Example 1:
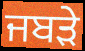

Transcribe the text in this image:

ਜਬੜੇ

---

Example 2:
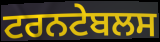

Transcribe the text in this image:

ਟਰਨਟੇਬਲਸ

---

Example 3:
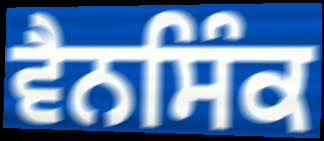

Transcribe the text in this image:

ਵੈਨਸਿੰਕ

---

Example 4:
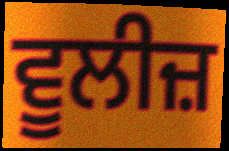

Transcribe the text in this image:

ਵੂਲੀਜ਼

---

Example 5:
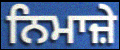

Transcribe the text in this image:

ਨਿਮਾਜ਼ੇ